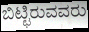
ಬಿಟ್ಟಿರುವವರು